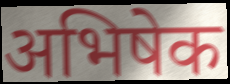
अभिषेक